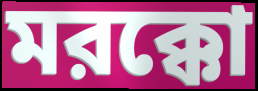
মরক্কো